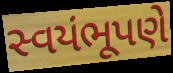
સ્વયંભૂપણે